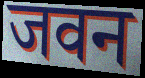
जवन